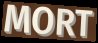
MORT